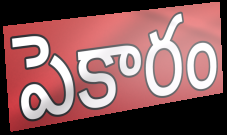
పెకారం